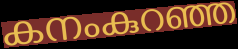
കനംകുറഞ്ഞ